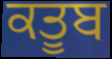
ਕਤੂਬ